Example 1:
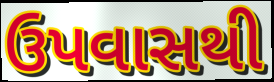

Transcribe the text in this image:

ઉપવાસથી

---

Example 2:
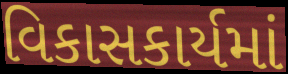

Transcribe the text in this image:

વિકાસકાર્યમાં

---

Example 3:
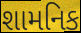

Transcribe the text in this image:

શામનિક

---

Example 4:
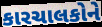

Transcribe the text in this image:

કારચાલકોને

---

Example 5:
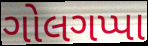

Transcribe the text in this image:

ગોલગપ્પા